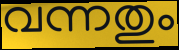
വന്നതും